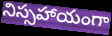
నిస్సహాయంగా